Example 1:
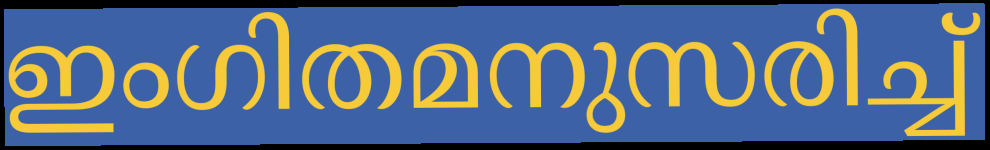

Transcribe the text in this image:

ഇംഗിതമനുസരിച്ച്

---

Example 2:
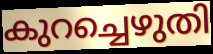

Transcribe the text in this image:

കുറച്ചെഴുതി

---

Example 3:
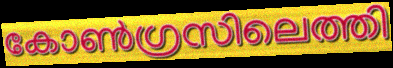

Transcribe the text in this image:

കോൺഗ്രസിലെത്തി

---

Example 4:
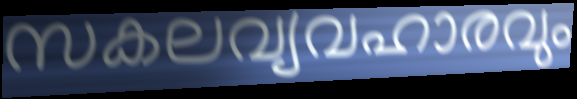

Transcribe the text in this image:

സകലവ്യവഹാരവും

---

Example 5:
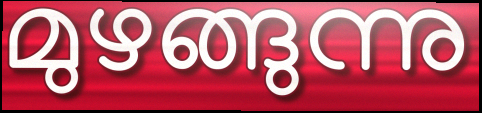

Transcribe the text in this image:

മുഴങ്ങുന്നു